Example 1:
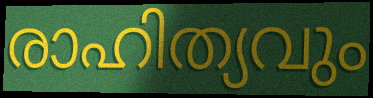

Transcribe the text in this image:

രാഹിത്യവും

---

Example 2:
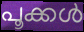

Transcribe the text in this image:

പൂക്കൾ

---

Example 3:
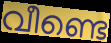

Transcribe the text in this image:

വീണ്ടെ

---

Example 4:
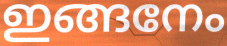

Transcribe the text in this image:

ഇങ്ങനേം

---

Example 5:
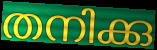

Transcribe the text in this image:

തനിക്കു